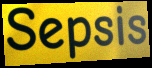
Sepsis